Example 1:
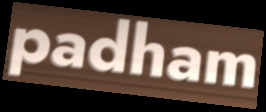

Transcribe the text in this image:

padham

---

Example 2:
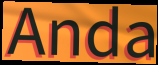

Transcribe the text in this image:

Anda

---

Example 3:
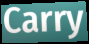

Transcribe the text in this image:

Carry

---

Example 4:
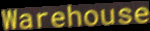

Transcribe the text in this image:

Warehouse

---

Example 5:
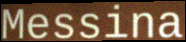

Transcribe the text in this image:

Messina